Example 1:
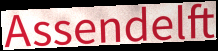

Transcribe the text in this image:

Assendelft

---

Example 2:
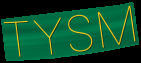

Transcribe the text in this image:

TYSM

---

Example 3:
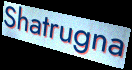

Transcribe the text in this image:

Shatrugna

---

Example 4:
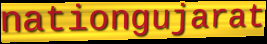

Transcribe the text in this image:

nationgujarat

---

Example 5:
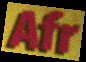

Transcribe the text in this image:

Afr